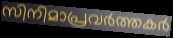
സിനിമാപ്രവർത്തകർ